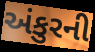
અંકુરની